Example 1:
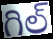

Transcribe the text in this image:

గిల్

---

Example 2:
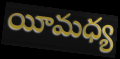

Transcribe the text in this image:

యీమధ్య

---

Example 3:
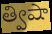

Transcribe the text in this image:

త్విషా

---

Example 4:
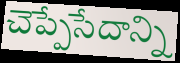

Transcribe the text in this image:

చెప్పేసేదాన్ని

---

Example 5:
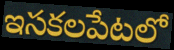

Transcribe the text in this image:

ఇసకలపేటలో